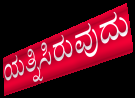
ಯತ್ನಿಸಿರುವುದು